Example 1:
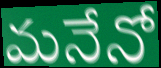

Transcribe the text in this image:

మనేనో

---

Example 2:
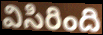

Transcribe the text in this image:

విసిరింది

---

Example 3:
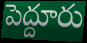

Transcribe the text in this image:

పెద్దూరు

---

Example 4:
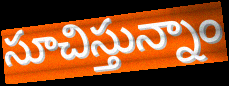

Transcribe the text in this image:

సూచిస్తున్నాం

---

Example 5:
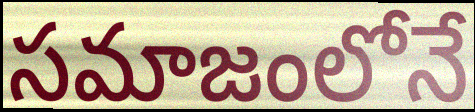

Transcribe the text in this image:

సమాజంలోనే